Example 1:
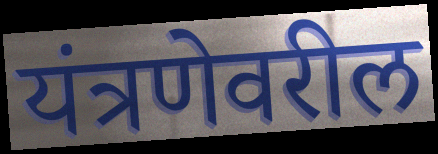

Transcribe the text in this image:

यंत्रणेवरील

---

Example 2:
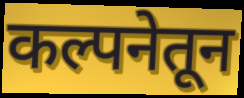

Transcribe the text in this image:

कल्पनेतून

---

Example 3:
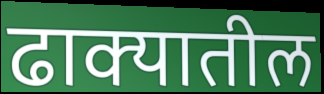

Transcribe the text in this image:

ढाक्यातील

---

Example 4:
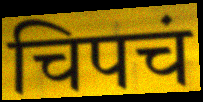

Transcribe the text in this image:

चिपचं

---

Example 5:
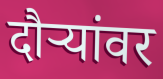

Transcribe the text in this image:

दौर्‍यांवर